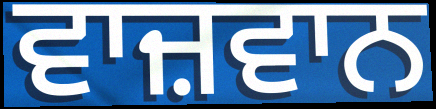
ਵਾਜ਼ਵਾਨ